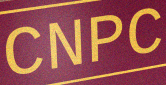
CNPC